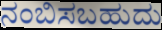
ನಂಬಿಸಬಹುದು